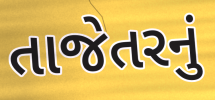
તાજેતરનું